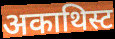
अकाथिस्ट